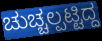
ಚುಚ್ಚಲ್ಪಟ್ಟಿದ್ದ